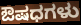
ಔಷಧಗಳು